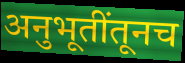
अनुभूतींतूनच